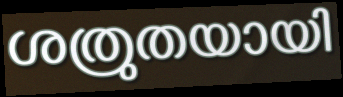
ശത്രുതയായി